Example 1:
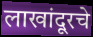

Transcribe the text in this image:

लाखांदूरचे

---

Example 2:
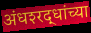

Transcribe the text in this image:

अंधश्रद्धांच्या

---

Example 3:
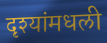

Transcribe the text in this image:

दृश्यांमधली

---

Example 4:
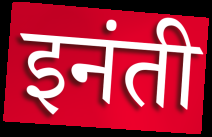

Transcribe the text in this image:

इनंती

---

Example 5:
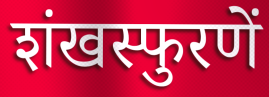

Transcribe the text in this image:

शंखस्फुरणें